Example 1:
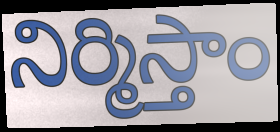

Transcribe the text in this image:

నిర్మిస్తాం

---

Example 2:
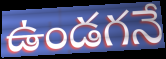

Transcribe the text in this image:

ఉండగనే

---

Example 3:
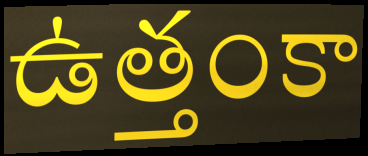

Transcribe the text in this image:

ఉత్తంకా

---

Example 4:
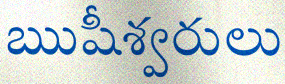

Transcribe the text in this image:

ఋషీశ్వరులు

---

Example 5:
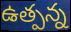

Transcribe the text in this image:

ఉత్పన్న